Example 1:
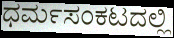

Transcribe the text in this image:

ಧರ್ಮಸಂಕಟದಲ್ಲಿ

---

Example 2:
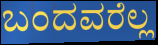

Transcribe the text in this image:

ಬಂದವರೆಲ್ಲ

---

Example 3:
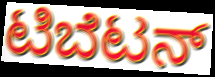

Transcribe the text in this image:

ಟಿಬೆಟನ್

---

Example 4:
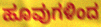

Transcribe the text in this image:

ಹೂವುಗಳಿಂದ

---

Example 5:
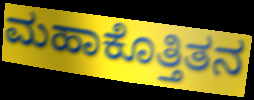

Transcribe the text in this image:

ಮಹಾಕೊತ್ತಿತನ